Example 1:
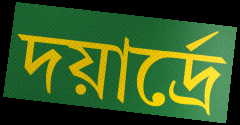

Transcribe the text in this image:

দয়ার্দ্রে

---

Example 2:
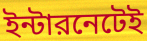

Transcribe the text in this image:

ইন্টারনেটেই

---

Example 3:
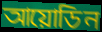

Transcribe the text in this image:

আয়োডিন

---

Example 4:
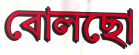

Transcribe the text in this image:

বোলছো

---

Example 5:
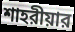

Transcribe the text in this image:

শাহরীয়ার